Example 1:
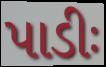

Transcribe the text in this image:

પાડીઃ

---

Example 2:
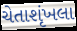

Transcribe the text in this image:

ચેતાશૃંખલા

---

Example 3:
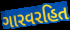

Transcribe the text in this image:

ગારવરહિત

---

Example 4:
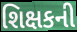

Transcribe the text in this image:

શિક્ષકની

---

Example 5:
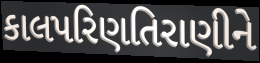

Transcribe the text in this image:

કાલપરિણતિરાણીને